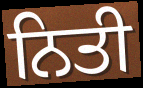
ਨਿਤੀ